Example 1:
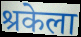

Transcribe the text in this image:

श्रकेला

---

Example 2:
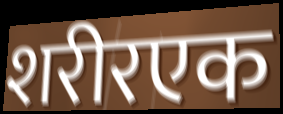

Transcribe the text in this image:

शरीरएक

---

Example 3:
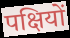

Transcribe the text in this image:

पक्षियों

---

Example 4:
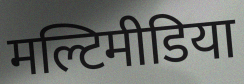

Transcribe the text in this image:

मल्टिमीडिया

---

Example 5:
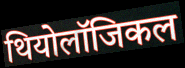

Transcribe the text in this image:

थियोलॉजिकल